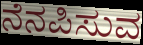
ನೆನಪಿಸುವ